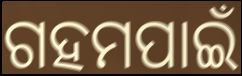
ଗହମପାଇଁ